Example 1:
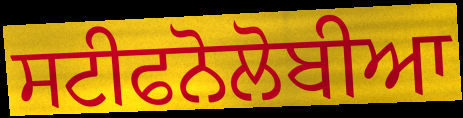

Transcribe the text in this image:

ਸਟੀਫਨੋਲੋਬੀਆ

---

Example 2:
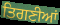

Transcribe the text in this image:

ਤਿਗਣੀਆਂ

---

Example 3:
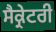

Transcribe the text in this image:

ਸੈਕ੍ਰੇਟਰੀ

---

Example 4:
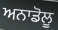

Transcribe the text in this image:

ਅਨਾਡੋਲੂ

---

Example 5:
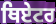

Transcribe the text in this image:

ਥਿਏਟਰ